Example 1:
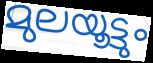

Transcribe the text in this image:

മുലയൂട്ടും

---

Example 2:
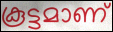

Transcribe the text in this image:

കൂട്ടമാണ്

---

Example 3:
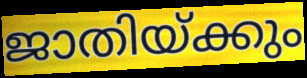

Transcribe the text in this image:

ജാതിയ്ക്കും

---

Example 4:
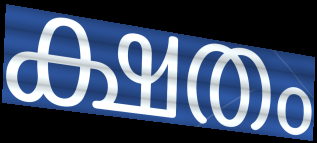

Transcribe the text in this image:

ക്ഷതം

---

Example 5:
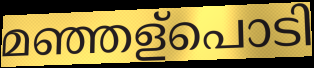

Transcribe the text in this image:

മഞ്ഞള്പൊടി